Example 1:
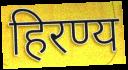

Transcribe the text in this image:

हिरण्य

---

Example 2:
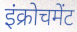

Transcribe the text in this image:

इंक्रोचमेंट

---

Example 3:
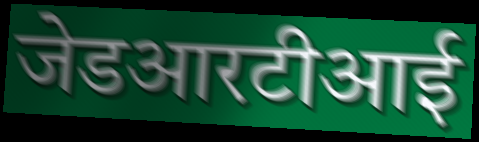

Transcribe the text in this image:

जेडआरटीआई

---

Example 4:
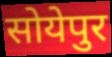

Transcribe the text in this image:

सोयेपुर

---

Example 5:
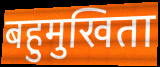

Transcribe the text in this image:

बहुमुखिता